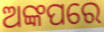
ଅଙ୍କପରେ